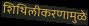
शिथिलीकरणामुळे